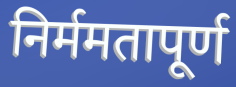
निर्ममतापूर्ण